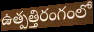
ఉత్పత్తిరంగంలో